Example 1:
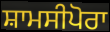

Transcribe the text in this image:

ਸ਼ਾਮਸੀਪੋਰਾ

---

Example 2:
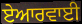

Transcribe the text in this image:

ਏਆਰਵਾਈ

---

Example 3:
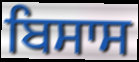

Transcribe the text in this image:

ਬਿਸਾਸ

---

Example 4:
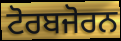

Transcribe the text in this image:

ਟੋਰਬਜੋਰਨ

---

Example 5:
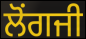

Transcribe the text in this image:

ਲੋਂਗਜੀ